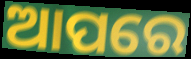
ଆପରେ